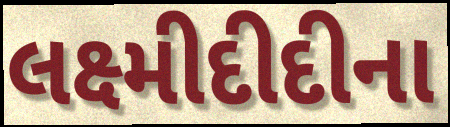
લક્ષ્મીદીદીના